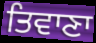
ਤਿਵਾਣਾ